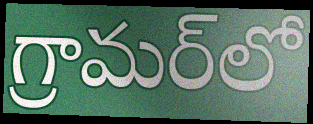
గ్రామర్‌లో